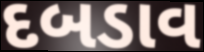
દબડાવ